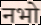
नभो